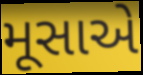
મૂસાએ